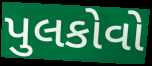
પુલકોવો